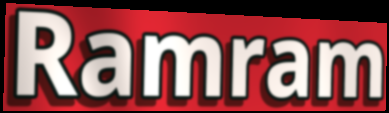
Ramram